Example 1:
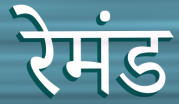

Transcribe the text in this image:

रेमंड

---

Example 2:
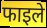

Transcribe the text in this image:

फाइले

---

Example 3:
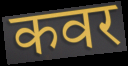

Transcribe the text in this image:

कवर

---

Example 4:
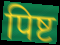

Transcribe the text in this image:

पिष्ट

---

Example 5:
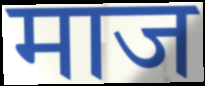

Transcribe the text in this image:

माज